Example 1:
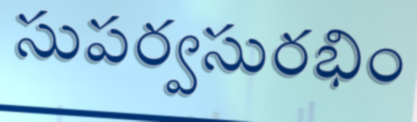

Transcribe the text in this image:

సుపర్వసురభిం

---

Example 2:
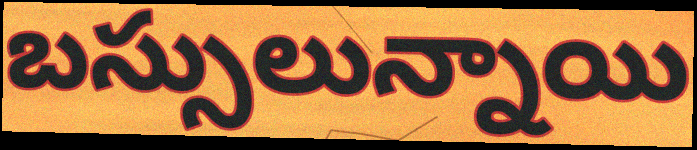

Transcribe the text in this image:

బస్సులున్నాయి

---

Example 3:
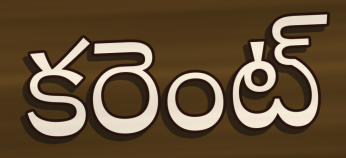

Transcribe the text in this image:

కరెంట్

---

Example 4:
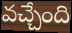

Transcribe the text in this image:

వచ్చేంది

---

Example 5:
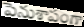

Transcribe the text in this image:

పెనుశాపంగా